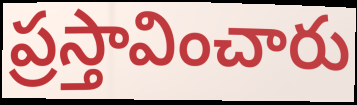
ప్రస్తావించారు